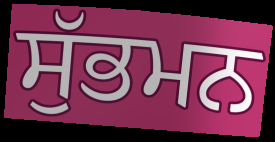
ਸੁੱਭਮਨ